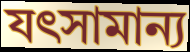
যৎসামান্য